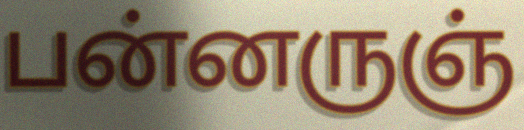
பன்னருஞ்